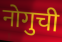
नोगुची